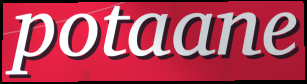
potaane